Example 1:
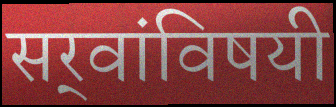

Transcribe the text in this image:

सर्वांविषयी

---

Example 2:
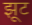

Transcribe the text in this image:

झूट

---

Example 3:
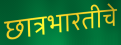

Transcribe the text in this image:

छात्रभारतीचे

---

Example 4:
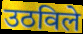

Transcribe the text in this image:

उठविले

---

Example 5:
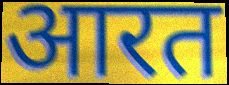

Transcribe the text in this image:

आरत